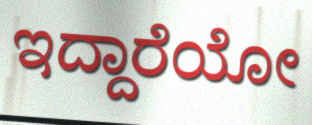
ಇದ್ದಾರೆಯೋ